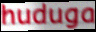
huduga